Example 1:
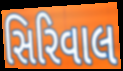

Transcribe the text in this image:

સિરિવાલ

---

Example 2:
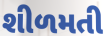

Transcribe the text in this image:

શીળમતી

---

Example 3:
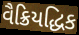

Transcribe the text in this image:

વૈક્રિયદ્ધિક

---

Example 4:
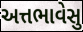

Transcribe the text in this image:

અત્તભાવેસુ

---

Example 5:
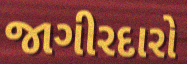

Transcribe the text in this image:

જાગીરદારો